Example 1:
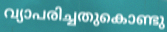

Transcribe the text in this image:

വ്യാപരിച്ചതുകൊണ്ടു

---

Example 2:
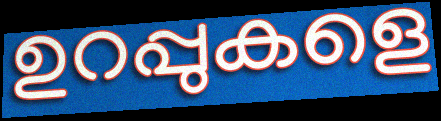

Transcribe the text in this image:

ഉറപ്പുകളെ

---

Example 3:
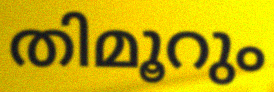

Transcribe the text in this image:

തിമൂറും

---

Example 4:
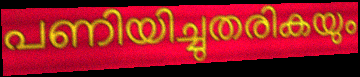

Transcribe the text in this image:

പണിയിച്ചുതരികയും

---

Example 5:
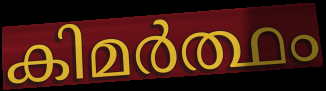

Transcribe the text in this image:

കിമർത്ഥം